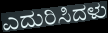
ಎದುರಿಸಿದಳು